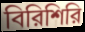
বিরিশিরি